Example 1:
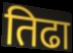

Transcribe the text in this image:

तिढा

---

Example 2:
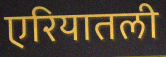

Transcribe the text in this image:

एरियातली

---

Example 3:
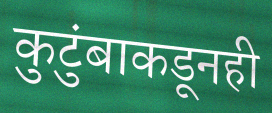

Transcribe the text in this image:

कुटुंबाकडूनही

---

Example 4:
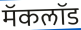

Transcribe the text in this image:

मॅकलॉड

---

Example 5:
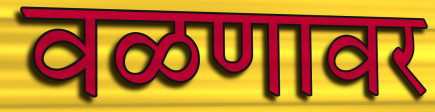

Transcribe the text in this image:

वळणावर